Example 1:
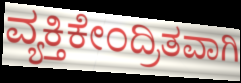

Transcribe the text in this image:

ವ್ಯಕ್ತಿಕೇಂದ್ರಿತವಾಗಿ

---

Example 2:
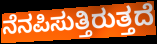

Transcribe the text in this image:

ನೆನಪಿಸುತ್ತಿರುತ್ತದೆ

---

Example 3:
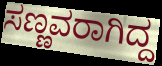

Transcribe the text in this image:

ಸಣ್ಣವರಾಗಿದ್ದ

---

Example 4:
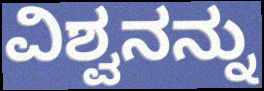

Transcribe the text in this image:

ವಿಶ್ವನನ್ನು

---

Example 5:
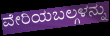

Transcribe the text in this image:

ವೇರಿಯಬಲ್ಗಳನ್ನು